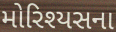
મોરિશ્યસના